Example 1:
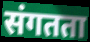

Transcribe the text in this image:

संगतता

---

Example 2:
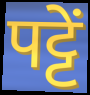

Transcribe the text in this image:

पट्टें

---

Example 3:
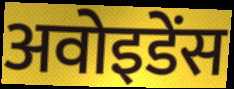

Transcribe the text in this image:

अवोइडेंस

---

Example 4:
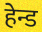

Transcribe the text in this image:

हेन्ड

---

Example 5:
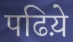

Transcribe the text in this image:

पढिय़े